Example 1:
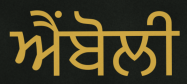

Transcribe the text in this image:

ਐਂਬੋਲੀ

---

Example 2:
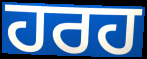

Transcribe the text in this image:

ਹਰਹ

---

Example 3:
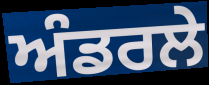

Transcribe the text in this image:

ਅੰਡਰਲੇ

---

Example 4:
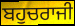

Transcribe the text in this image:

ਬਹੁਚਰਾਜੀ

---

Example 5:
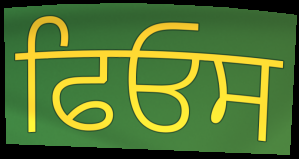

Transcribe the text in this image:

ਫਿਓਸ